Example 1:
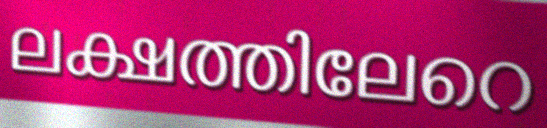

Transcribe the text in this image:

ലക്ഷത്തിലേറെ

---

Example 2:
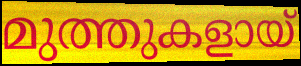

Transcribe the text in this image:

മുത്തുകളായ്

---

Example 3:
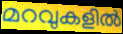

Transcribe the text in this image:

മറവുകളിൽ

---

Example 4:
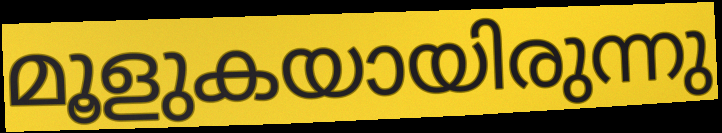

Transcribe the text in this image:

മൂളുകയായിരുന്നു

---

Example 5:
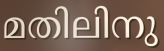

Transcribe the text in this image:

മതിലിനു